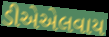
ડીએએલવાય